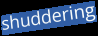
shuddering